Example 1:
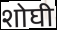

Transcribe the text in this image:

शोघी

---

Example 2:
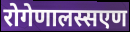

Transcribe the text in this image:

रोगेणालस्सएण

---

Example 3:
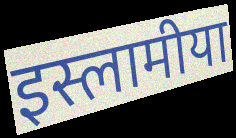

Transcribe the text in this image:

इस्लामीया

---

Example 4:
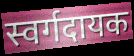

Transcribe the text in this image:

स्वर्गदायक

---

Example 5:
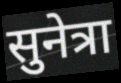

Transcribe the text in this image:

सुनेत्रा